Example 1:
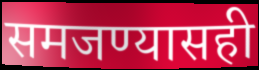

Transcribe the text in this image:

समजण्यासही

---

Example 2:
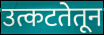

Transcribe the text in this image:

उत्कटतेतून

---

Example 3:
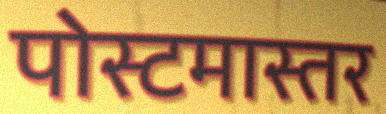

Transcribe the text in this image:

पोस्टमास्तर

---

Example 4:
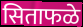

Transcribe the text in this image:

सिताफळे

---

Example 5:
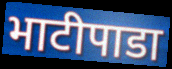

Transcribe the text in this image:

भाटीपाडा